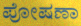
ಪೋಷಣಾ